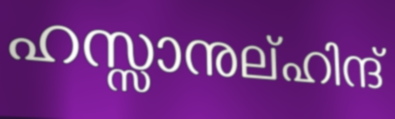
ഹസ്സാനുല്ഹിന്ദ്